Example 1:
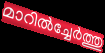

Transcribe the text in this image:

മാറിൽച്ചേർത്തു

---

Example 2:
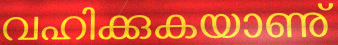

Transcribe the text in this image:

വഹിക്കുകയാണു്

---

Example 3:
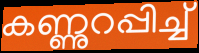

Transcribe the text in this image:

കണ്ണുറപ്പിച്ച്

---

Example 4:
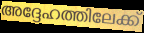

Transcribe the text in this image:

അദ്ദേഹത്തിലേക്ക്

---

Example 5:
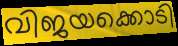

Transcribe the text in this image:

വിജയക്കൊടി